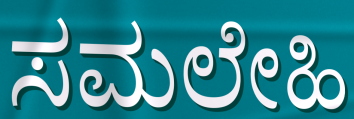
ಸಮಲೇಹಿ